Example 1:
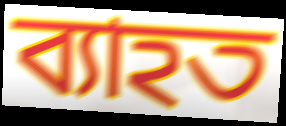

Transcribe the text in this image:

ব্যাহত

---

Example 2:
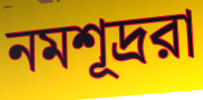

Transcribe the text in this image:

নমশূদ্ররা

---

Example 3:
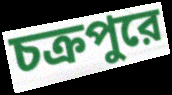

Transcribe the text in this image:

চক্রপুরে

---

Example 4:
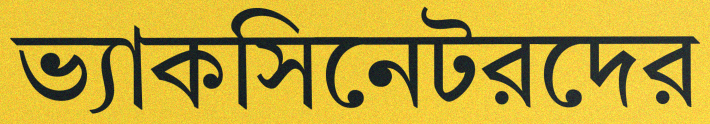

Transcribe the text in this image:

ভ্যাকসিনেটরদের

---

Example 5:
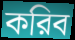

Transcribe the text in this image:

করিব